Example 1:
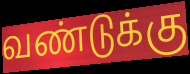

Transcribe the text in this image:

வண்டுக்கு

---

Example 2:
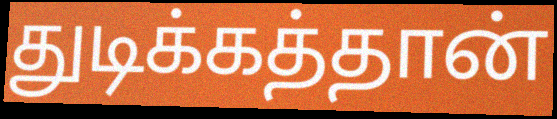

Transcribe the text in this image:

துடிக்கத்தான்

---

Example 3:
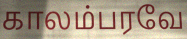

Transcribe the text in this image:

காலம்பரவே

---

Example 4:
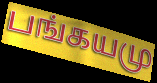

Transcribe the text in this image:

பங்கயமு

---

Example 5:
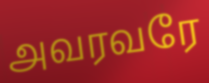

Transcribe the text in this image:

அவரவரே